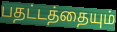
பதட்டத்தையும்